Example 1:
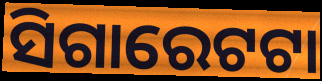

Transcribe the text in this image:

ସିଗାରେଟଟା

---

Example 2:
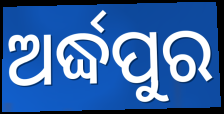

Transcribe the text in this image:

ଅର୍ଦ୍ଧପୁର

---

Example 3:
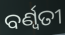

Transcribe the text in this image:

ବର୍ଣ୍ବତୀ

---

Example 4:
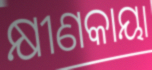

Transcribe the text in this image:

କ୍ଷୀଣକାୟା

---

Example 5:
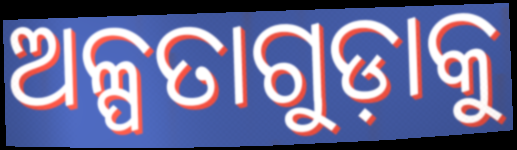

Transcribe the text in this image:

ଅଳ୍ପତାଗୁଡ଼ାକୁ